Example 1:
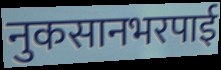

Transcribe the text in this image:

नुकसानभरपाई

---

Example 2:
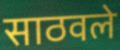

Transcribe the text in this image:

साठवले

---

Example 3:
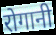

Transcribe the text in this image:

रोगानी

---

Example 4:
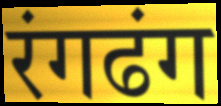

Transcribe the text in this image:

रंगढंग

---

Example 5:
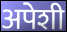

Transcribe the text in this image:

अपेशी